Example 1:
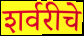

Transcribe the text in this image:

शर्वरीचे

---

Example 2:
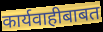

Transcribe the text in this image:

कार्यवाहीबाबत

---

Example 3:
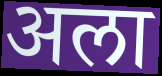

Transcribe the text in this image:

अला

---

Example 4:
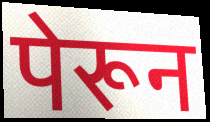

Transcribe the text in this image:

पेरून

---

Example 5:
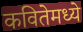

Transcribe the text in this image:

कवितेमध्ये